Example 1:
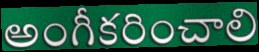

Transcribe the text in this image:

అంగీకరించాలి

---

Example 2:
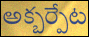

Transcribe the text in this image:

అక్బర్పేట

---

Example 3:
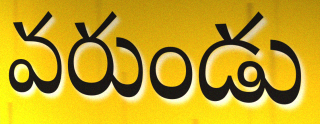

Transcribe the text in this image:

వరుండు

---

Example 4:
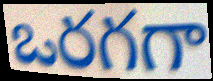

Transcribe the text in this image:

ఒరగగా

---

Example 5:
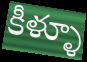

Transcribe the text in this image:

కీళ్ళూ